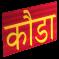
कौडा